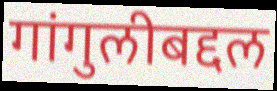
गांगुलीबद्दल